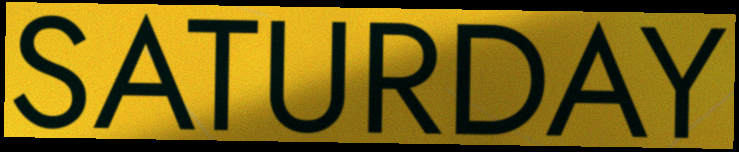
SATURDAY